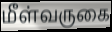
மீள்வருகை